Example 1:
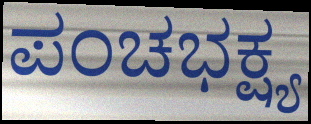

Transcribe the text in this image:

ಪಂಚಭಕ್ಷ್ಯ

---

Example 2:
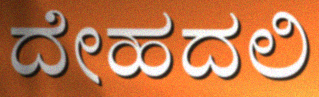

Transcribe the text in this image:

ದೇಹದಲಿ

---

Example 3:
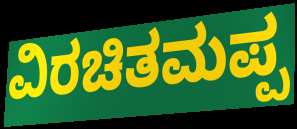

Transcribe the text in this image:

ವಿರಚಿತಮಪ್ಪ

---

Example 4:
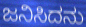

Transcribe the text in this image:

ಜನಿಸಿದನು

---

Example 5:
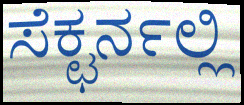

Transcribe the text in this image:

ಸೆಕ್ಟರ್ನಲ್ಲಿ